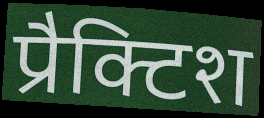
प्रैक्टिश